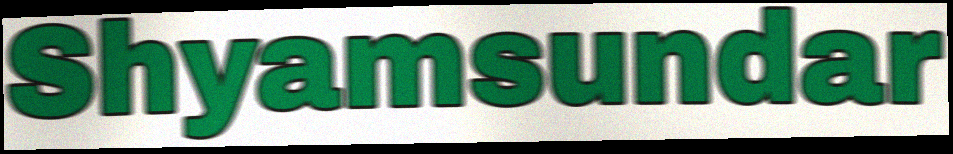
Shyamsundar